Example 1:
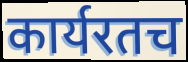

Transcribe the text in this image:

कार्यरतच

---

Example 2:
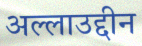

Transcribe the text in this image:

अल्लाउद्दीन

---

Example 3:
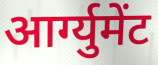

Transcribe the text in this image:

आर्ग्युमेंट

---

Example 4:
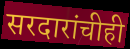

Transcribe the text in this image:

सरदारांचीही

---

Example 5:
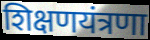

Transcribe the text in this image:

शिक्षणयंत्रणा